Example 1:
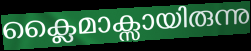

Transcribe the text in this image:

ക്ലൈമാക്സായിരുന്നു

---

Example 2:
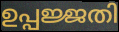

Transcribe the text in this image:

ഉപ്പജ്ജതി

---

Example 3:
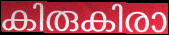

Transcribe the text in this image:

കിരുകിരാ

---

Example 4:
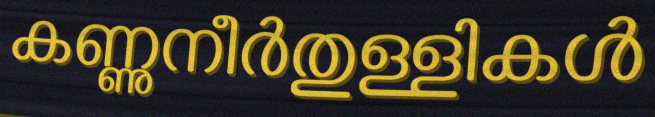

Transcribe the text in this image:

കണ്ണുനീർതുള്ളികൾ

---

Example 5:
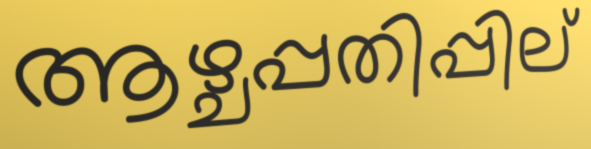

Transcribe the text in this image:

ആഴ്ചപ്പതിപ്പില്